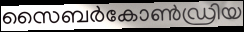
സൈബർകോൺഡ്രിയ